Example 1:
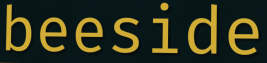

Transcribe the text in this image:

beeside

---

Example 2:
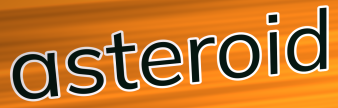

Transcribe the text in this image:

asteroid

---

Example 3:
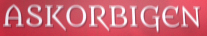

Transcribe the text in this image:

ASKORBIGEN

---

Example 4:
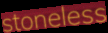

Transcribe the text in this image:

stoneless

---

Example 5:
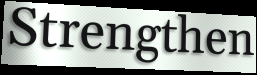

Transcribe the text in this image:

Strengthen